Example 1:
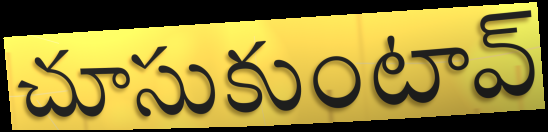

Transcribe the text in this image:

చూసుకుంటావ్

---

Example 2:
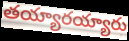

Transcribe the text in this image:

తయ్యారయ్యారు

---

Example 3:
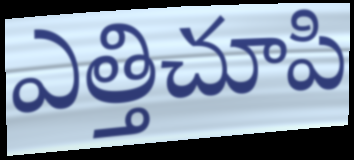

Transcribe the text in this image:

ఎత్తిచూపి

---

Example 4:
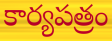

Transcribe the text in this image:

కార్యపత్రం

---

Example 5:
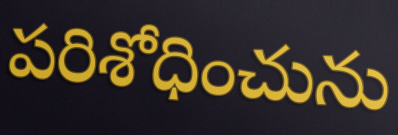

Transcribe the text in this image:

పరిశోధించును